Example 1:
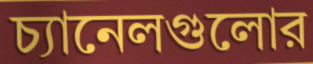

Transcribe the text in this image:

চ্যানেলগুলোর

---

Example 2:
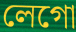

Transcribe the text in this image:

লেগো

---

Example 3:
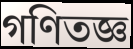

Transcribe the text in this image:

গণিতজ্ঞ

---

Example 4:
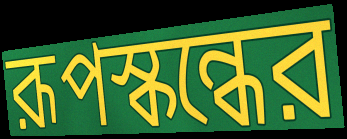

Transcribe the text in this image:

রূপস্কন্ধের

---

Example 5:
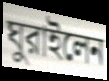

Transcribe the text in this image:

ঘুরাইলেন